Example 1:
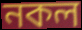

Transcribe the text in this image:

নকল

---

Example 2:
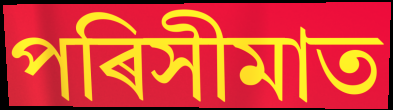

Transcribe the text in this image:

পৰিসীমাত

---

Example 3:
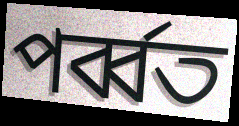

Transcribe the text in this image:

পৰ্ব্বত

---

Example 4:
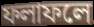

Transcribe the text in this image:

ফলাফলে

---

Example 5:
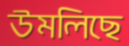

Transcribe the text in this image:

উমলিছে